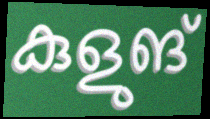
കുളുങ്